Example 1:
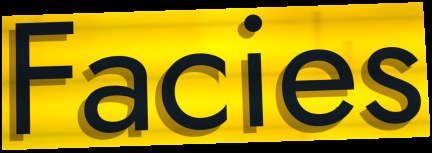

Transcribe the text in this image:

Facies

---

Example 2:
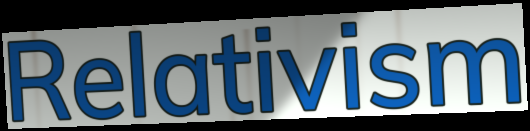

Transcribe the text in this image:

Relativism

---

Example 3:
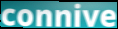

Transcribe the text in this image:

connive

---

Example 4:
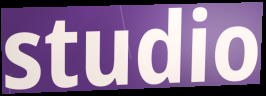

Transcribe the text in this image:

studio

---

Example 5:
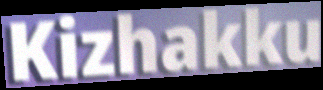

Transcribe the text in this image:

Kizhakku